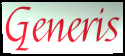
Generis